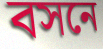
বসনে